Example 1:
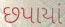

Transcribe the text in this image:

છપાયાં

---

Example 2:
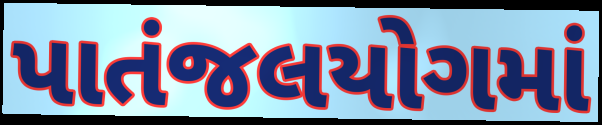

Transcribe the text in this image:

પાતંજલયોગમાં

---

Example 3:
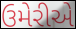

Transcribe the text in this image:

ઉમેરીએ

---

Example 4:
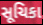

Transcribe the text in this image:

સૂચિકા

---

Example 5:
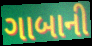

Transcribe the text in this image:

ગાબાની